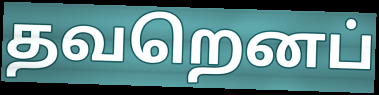
தவறெனப்